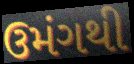
ઉમંગથી